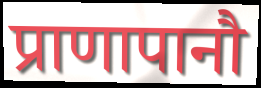
प्राणापानौ